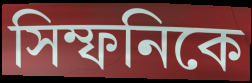
সিম্ফনিকে